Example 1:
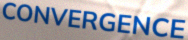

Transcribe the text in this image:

CONVERGENCE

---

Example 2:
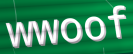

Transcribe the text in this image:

wwoof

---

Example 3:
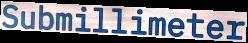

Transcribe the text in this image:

Submillimeter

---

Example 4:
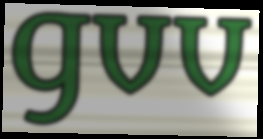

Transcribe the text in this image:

guu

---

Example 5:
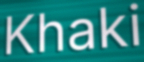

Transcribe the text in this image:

Khaki